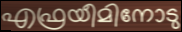
എഫ്രയീമിനോടു